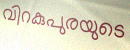
വിറകുപുരയുടെ